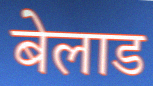
बेलाड